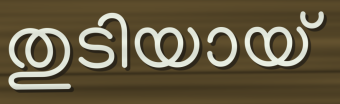
തുടിയായ്